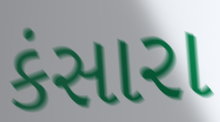
કંસારા